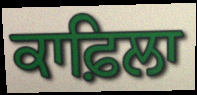
ਕਾਫ਼ਿਲਾ